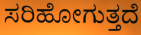
ಸರಿಹೋಗುತ್ತದೆ